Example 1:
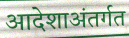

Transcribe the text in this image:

आदेशाअंतर्गत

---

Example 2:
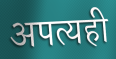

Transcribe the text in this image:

अपत्यही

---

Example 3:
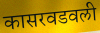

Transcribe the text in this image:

कासरवडवली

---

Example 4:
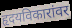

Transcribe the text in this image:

हृदयविकारांवर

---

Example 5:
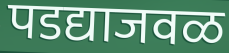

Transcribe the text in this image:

पडद्याजवळ